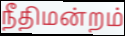
நீதிமன்றம்